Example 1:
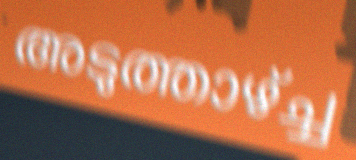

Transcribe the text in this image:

അടുത്താഴ്ച്ച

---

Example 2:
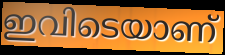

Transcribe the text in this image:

ഇവിടെയാണ്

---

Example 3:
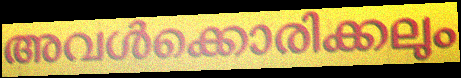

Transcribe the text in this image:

അവൾക്കൊരിക്കലും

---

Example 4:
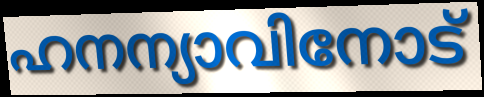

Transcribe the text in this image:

ഹനന്യാവിനോട്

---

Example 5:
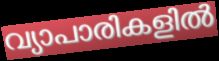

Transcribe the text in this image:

വ്യാപാരികളിൽ